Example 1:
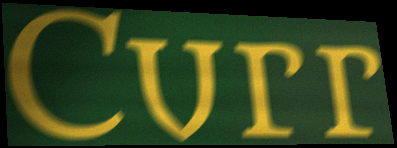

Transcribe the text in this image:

Curr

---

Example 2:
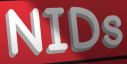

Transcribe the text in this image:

NIDs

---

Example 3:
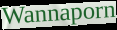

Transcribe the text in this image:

Wannaporn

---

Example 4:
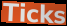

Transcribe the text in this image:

Ticks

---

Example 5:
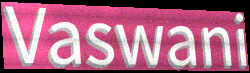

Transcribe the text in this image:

Vaswani